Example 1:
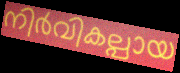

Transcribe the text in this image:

നിർവികല്പായ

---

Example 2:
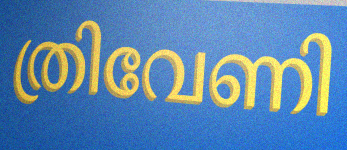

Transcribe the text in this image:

ത്രിവേണി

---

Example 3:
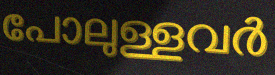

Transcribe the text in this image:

പോലുള്ളവർ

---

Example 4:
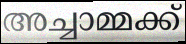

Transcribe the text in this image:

അച്ചാമ്മക്ക്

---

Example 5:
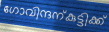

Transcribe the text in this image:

ഗോവിന്ദന്കുട്ടിക്ക്